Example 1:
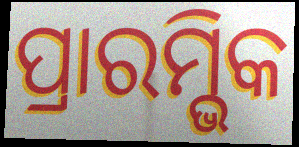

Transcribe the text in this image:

ପ୍ରାରମ୍ଭିକ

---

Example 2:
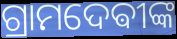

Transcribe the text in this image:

ଗ୍ରାମଦେଵୀଙ୍କ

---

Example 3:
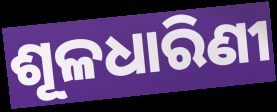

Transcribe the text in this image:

ଶୂଳଧାରିଣୀ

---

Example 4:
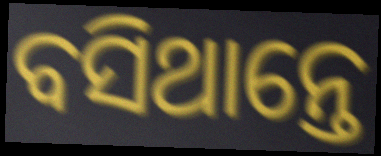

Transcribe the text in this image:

ବସିଥାନ୍ତେ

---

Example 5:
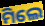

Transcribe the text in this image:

ମିଲେ